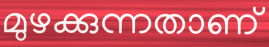
മുഴക്കുന്നതാണ്